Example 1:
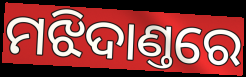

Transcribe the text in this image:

ମଝିଦାଣ୍ତରେ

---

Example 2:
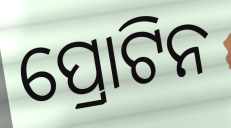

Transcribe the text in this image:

ପ୍ରୋଟିନ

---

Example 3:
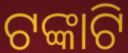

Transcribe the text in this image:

ଟଙ୍କାଟି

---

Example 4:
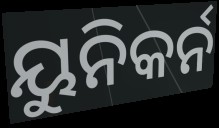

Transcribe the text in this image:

ୟୁନିକର୍ନ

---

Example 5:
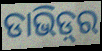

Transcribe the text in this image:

ଡାଭିଡ଼୍‍ର